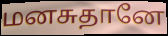
மனசுதானே